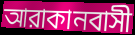
আরাকানবাসী